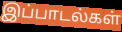
இப்பாடல்கள்